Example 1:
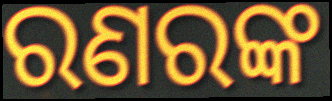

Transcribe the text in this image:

ରଣରଙ୍କ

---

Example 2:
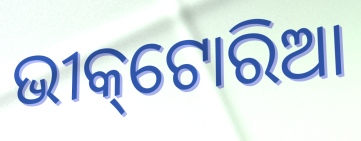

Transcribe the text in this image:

ଭୀକ୍‌ଟୋରିଆ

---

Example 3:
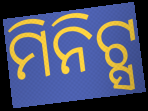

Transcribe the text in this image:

ମିନିଟ୍ସ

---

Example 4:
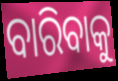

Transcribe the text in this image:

ବାରିବାକୁ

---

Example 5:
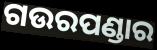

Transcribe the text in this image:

ଗଉରପଣ୍ଡାର